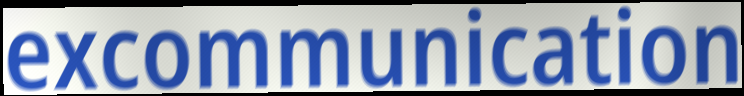
excommunication